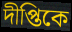
দীপ্তিকে